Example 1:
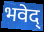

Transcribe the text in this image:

भवेद्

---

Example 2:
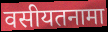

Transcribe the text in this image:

वसीयतनामा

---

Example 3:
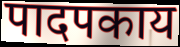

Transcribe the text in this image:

पादपकाय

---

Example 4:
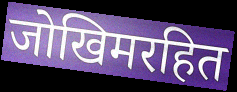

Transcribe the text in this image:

जोखिमरहित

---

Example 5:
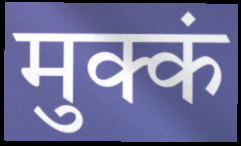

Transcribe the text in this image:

मुक्कं